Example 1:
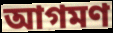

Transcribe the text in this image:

আগমণ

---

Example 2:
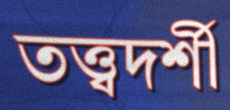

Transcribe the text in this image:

তত্ত্বদর্শী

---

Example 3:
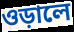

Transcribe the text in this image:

ওড়ালে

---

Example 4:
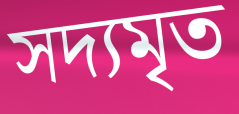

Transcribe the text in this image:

সদ্যমৃত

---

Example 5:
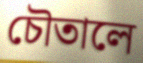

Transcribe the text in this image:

চৌতালে